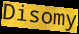
Disomy